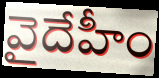
వైదేహీం